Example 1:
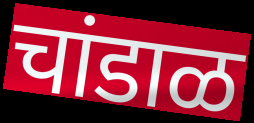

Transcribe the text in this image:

चांडाळ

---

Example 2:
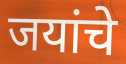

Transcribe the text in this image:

जयांचे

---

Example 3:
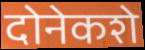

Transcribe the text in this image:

दोनेकशे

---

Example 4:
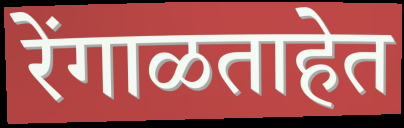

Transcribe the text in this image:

रेंगाळताहेत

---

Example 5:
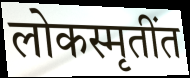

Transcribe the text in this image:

लोकस्मृतींत